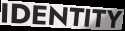
IDENTITY